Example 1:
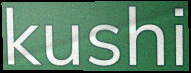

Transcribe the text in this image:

kushi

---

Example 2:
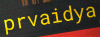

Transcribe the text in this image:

prvaidya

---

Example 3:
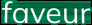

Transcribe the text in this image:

faveur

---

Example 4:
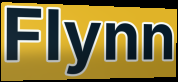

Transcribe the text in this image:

Flynn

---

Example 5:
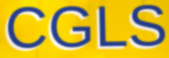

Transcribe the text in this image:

CGLS